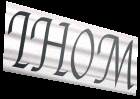
IHOM